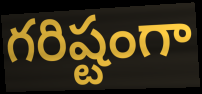
గరిష్టంగా